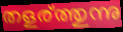
തളര്ത്തുന്നു